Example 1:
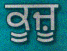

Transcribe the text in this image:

ਕੂਜ਼ੂ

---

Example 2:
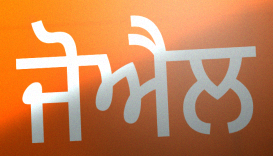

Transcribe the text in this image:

ਜੋਐਲ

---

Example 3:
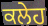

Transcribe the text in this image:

ਕਲੇਹ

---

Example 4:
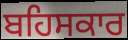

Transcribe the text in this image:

ਬਹਿਸਕਾਰ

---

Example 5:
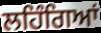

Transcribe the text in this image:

ਲਹਿੰਗਿਆਂ